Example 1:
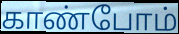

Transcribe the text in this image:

காண்போம்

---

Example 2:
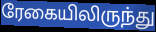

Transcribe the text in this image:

ரேகையிலிருந்து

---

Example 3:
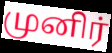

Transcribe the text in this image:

முனிர்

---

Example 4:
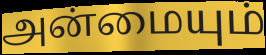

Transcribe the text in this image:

அன்மையும்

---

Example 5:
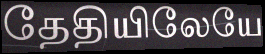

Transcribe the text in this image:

தேதியிலேயே